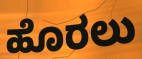
ಹೊರಲು